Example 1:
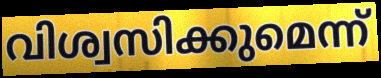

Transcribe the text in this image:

വിശ്വസിക്കുമെന്ന്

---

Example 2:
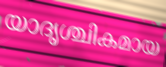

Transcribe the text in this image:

യാദൃശ്ചികമായ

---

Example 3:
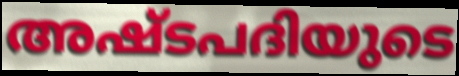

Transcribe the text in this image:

അഷ്ടപദിയുടെ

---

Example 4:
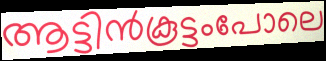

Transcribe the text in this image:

ആട്ടിൻകൂട്ടംപോലെ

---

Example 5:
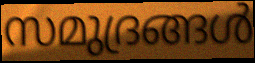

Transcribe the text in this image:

സമുദ്രങ്ങൾ